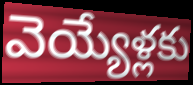
వెయ్యేళ్లకు